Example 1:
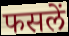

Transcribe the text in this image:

फसलें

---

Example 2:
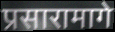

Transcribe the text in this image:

प्रसारामागे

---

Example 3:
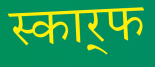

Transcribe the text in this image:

स्कार्फ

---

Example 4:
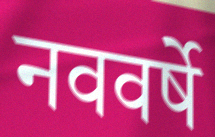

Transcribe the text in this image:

नववर्षे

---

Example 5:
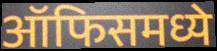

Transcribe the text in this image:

ऑफिसमध्ये